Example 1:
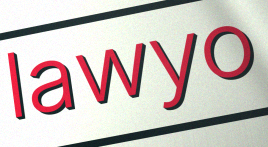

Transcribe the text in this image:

lawyo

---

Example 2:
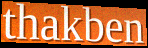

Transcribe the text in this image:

thakben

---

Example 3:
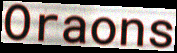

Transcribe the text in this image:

Oraons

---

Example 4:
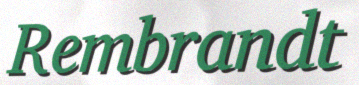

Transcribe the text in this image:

Rembrandt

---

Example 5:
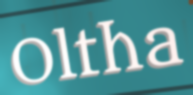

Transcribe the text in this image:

Oltha